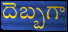
దెబ్బగా